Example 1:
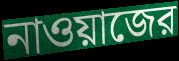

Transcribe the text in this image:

নাওয়াজের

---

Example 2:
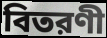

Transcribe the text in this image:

বিতরণী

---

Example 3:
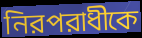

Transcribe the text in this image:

নিরপরাধীকে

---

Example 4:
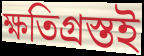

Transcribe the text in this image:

ক্ষতিগ্রস্তই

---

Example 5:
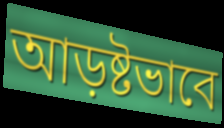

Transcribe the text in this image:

আড়ষ্টভাবে